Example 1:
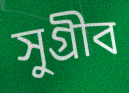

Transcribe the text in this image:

সুগ্রীব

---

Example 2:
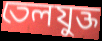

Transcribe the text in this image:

তেলযুক্ত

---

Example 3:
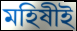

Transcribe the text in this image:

মহিষীই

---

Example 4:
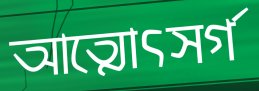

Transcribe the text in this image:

আত্মোৎসর্গ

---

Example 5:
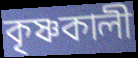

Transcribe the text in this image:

কৃষ্ণকালী